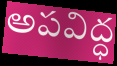
అపవిద్ధ